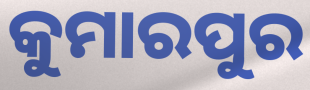
କୁମାରପୁର